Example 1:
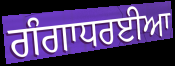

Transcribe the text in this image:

ਗੰਗਾਧਰਈਆ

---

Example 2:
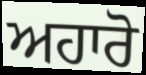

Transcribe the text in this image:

ਅਹਾਰੋ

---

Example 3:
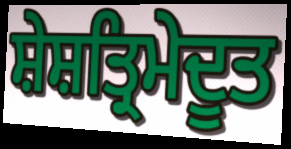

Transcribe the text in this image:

ਸ਼ੇਸ਼ਤ੍ਰਿਮੇਦੂਤ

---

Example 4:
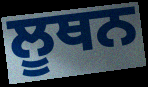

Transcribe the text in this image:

ਲੂਥਨ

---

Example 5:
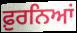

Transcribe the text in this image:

ਫ਼ੁਰਨਿਆਂ